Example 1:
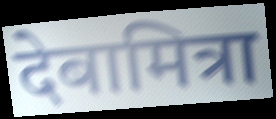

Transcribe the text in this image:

देबामित्रा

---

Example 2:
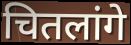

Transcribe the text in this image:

चितलांगे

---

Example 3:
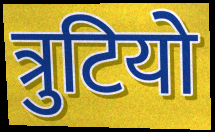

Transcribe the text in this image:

त्रुटियो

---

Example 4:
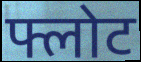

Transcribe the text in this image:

फ्लोट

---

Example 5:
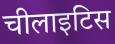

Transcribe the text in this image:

चीलाइटिस